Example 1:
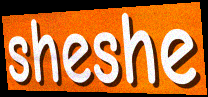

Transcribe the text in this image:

sheshe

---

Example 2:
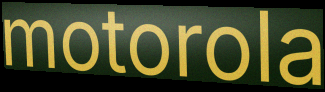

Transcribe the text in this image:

motorola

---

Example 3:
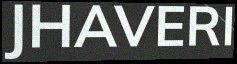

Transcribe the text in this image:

JHAVERI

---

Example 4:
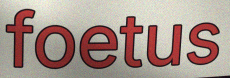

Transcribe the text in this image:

foetus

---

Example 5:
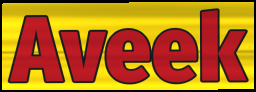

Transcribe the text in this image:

Aveek